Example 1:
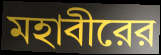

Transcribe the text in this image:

মহাবীরের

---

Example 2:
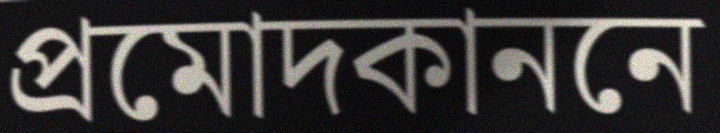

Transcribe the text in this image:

প্রমোদকাননে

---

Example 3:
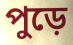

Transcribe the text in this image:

পুড়ে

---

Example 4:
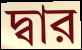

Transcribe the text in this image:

দ্বার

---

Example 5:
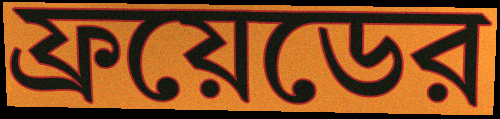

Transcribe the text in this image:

ফ্রয়েডের